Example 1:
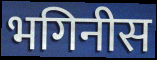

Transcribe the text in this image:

भगिनीस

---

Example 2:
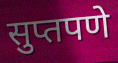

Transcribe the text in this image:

सुप्तपणे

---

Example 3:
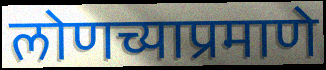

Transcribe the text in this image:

लोणच्याप्रमाणे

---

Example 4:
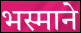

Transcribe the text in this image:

भस्माने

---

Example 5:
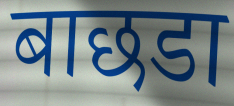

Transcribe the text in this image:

बाछडा